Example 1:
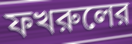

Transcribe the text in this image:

ফখরুলের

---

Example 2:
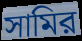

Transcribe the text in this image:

সামির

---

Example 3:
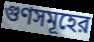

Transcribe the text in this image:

গুণসমূহের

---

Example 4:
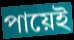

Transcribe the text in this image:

পায়েই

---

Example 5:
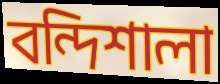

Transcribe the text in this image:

বন্দিশালা